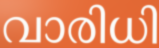
വാരിധി